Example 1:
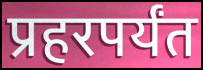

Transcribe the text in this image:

प्रहरपर्यंत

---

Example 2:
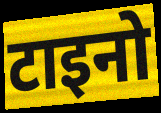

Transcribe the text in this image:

टाइनो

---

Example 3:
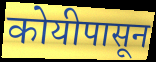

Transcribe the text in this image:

कोयीपासून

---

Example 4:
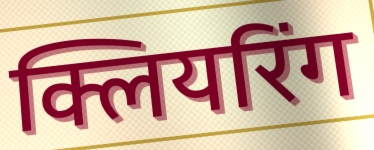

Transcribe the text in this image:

क्लियरिंग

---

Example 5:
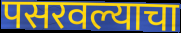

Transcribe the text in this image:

पसरवल्याचा